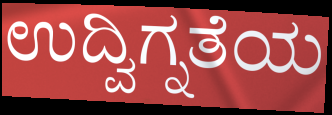
ಉದ್ವಿಗ್ನತೆಯ